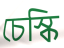
চেস্কি